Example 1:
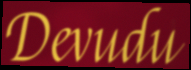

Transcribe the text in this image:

Devudu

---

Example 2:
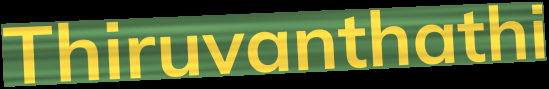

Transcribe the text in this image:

Thiruvanthathi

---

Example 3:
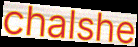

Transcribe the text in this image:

chalshe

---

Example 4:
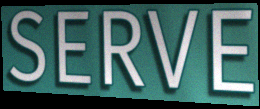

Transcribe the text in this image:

SERVE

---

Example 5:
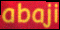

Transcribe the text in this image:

abaji